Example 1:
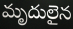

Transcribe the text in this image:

మృదులైన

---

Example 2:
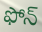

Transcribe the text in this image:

ఫోన్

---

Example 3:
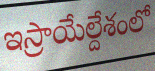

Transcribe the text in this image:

ఇస్రాయేల్దేశంలో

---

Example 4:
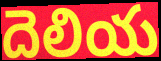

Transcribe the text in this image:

దెలియ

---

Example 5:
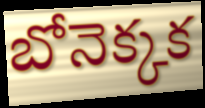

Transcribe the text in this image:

బోనెక్కక